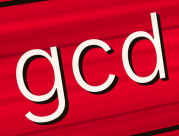
gcd